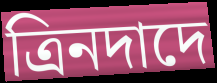
ত্রিনদাদে